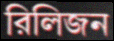
রিলিজন